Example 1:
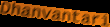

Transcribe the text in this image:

Dhanvantari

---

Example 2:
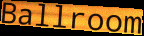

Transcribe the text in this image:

Ballroom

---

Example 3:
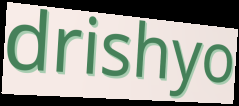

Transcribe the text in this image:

drishyo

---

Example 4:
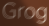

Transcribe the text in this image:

Grog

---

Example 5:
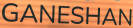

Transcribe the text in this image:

GANESHAN